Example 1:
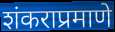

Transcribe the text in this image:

शंकराप्रमाणे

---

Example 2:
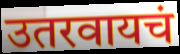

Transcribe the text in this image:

उतरवायचं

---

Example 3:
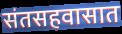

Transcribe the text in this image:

संतसहवासात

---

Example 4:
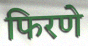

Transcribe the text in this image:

फिरणे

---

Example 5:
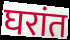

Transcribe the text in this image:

घरांत